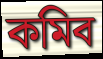
কমিব